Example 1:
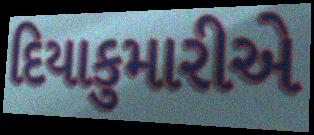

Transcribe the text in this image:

દિયાકુમારીએ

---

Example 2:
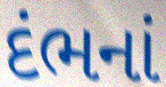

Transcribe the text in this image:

દંભનાં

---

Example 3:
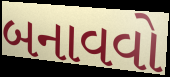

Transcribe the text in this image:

બનાવવો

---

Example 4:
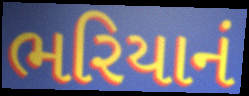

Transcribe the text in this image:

ભરિયાનં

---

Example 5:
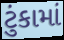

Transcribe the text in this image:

ટુંકામાં